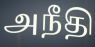
அநீதி